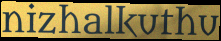
nizhalkuthu